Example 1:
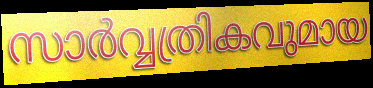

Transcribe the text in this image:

സാർവ്വത്രികവുമായ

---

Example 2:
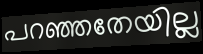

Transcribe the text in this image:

പറഞ്ഞതേയില്ല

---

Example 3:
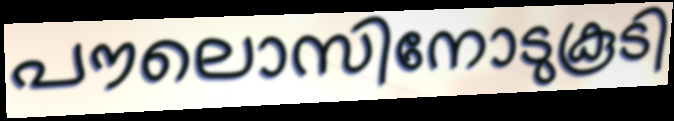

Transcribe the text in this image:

പൗലൊസിനോടുകൂടി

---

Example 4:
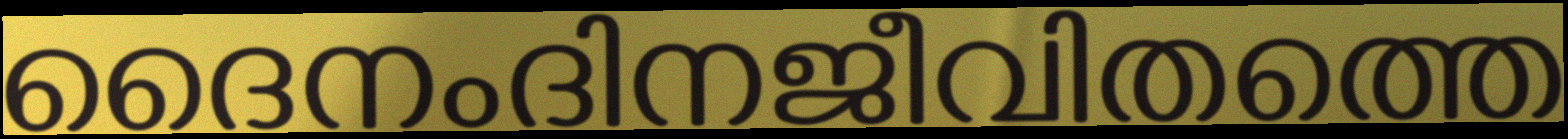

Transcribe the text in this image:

ദൈനംദിനജീവിതത്തെ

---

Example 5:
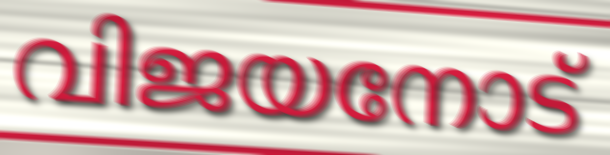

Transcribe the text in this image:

വിജയനോട്